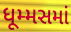
ધૂમ્મસમાં